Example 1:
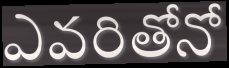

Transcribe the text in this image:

ఎవరితోనో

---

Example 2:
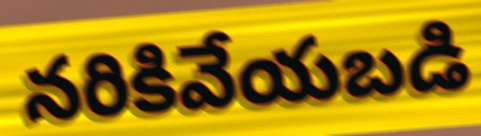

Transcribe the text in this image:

నరికివేయబడి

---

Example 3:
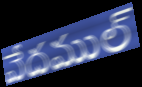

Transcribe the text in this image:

వేదముల్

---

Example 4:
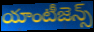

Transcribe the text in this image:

యాంటీజెన్స్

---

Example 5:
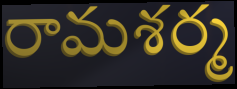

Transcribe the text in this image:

రామశర్మ